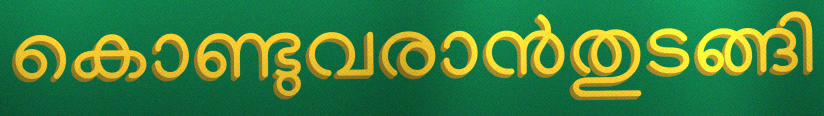
കൊണ്ടുവരാൻതുടങ്ങി